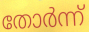
തോർന്ന്